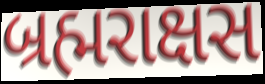
બ્રહ્મરાક્ષસ